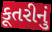
કૂતરીનું